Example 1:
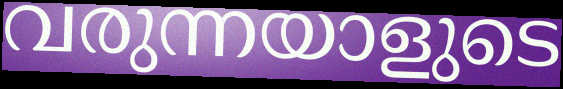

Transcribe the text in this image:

വരുന്നയാളുടെ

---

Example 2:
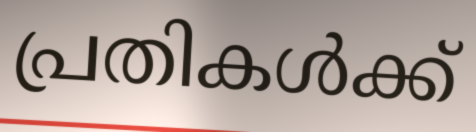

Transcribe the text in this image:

പ്രതികൾക്ക്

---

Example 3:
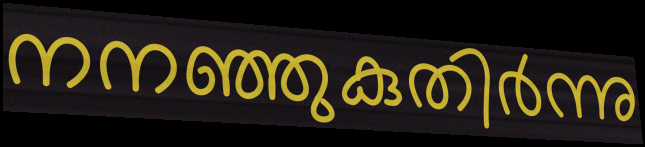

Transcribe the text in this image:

നനഞ്ഞുകുതിർന്നു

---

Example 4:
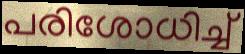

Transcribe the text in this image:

പരിശോധിച്ച്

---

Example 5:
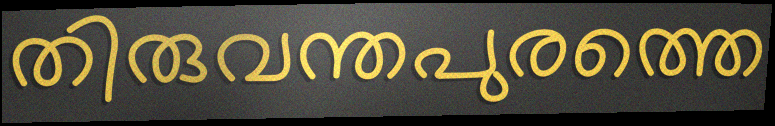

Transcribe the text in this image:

തിരുവന്തപുരത്തെ